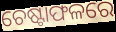
ଚେଷ୍ଟାଫଳରେ